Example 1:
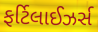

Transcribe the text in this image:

ફર્ટિલાઈઝર્સ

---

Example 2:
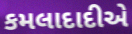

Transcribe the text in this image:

કમલાદાદીએ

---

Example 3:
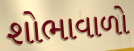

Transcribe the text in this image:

શોભાવાળો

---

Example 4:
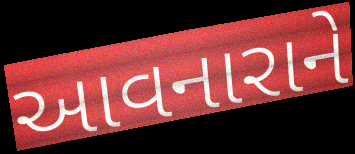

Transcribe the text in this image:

આવનારાને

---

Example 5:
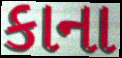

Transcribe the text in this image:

કાના